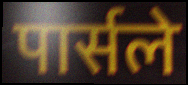
पार्सले